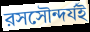
রসসৌন্দর্যই